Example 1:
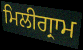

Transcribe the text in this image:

ਮਿਲੀਗ੍ਰਾਮ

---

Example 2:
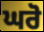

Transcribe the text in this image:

ਘਰੋ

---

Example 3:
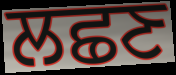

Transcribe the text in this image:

ਲਛਣ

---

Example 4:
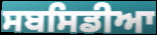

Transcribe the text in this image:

ਸਬਸਿਡੀਆ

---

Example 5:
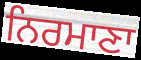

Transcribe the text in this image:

ਨਿਰਮਾਣਾ